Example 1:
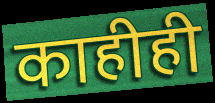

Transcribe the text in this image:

काहीही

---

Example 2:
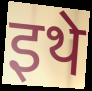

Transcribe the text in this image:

इथे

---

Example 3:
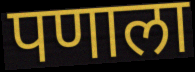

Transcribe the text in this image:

पणाला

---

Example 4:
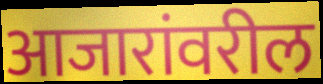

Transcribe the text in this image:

आजारांवरील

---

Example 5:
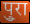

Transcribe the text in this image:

पु॒रा